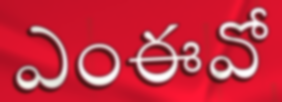
ఎంఈవో